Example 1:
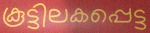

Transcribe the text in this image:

കൂട്ടിലകപ്പെട്ട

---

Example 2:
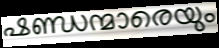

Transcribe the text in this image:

ഷണ്ഡന്മാരെയും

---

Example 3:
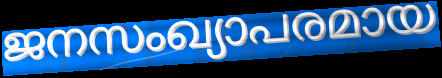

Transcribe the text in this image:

ജനസംഖ്യാപരമായ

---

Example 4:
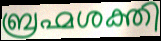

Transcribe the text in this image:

ബ്രഹ്മശക്തി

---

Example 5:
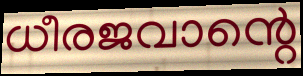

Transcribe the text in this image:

ധീരജവാന്റെ